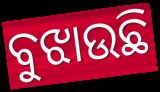
ବୁଝାଉଛି